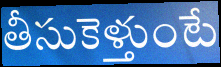
తీసుకెళ్తుంటే